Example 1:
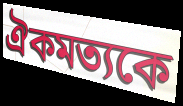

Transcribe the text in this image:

ঐকমত্যকে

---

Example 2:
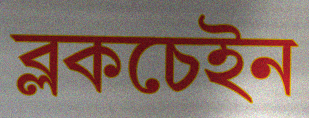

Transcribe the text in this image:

ব্লকচেইন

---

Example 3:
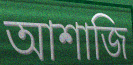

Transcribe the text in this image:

আশাজি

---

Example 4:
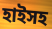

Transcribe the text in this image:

হাইসহ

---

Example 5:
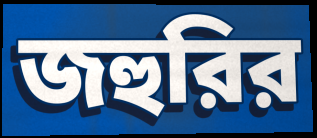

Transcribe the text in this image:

জহুরির